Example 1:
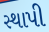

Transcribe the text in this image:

સ્થાપી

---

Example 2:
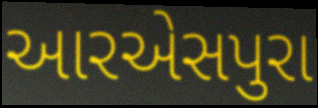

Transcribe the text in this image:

આરએસપુરા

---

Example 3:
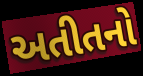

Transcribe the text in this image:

અતીતનો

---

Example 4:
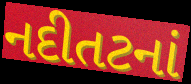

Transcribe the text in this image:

નદીતટનાં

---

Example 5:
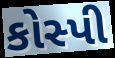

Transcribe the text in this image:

કોસ્પી